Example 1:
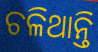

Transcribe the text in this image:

ଚଳିଥାନ୍ତି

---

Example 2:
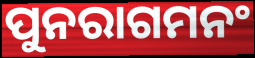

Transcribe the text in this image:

ପୁନରାଗମନଂ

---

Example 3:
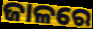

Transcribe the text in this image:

ଜାଳରେ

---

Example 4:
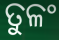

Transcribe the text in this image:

ତୁଳଂ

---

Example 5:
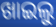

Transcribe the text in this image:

ଖାଇଲୁ